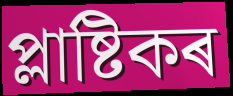
প্লাষ্টিকৰ